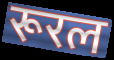
रूरल